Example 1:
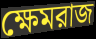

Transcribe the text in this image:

ক্ষেমরাজ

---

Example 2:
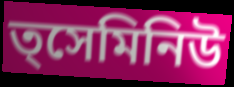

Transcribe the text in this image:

ত্সেমিনিউ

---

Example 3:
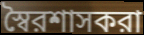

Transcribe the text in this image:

স্বৈরশাসকরা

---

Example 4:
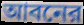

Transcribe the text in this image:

আবনের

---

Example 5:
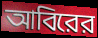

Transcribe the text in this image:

আবিরের